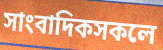
সাংবাদিকসকলে